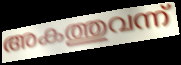
അകത്തുവന്ന്